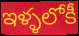
ఇళ్ళలోకీ